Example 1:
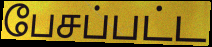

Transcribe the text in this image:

பேசப்பட்ட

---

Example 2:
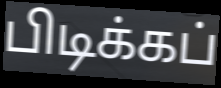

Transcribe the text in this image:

பிடிக்கப்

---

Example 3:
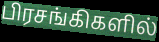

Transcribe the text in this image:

பிரசங்கிகளில்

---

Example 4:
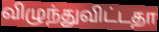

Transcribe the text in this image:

விழுந்துவிட்டதா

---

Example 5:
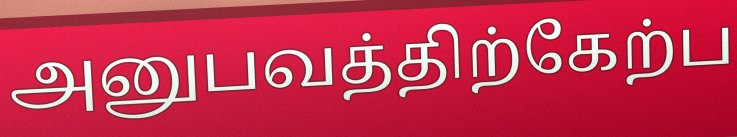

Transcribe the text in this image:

அனுபவத்திற்கேற்ப